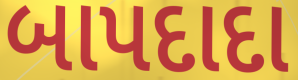
બાપદાદા